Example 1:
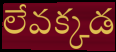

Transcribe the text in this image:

లేవక్కడ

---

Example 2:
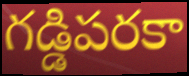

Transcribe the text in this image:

గడ్డిపరకా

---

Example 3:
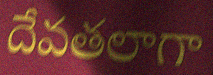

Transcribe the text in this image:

దేవతలాగా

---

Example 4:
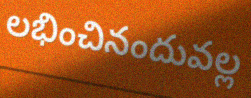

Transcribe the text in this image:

లభించినందువల్ల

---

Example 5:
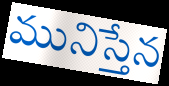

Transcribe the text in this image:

మునిస్తేన